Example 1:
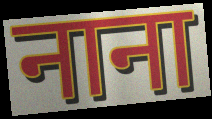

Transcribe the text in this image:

नाना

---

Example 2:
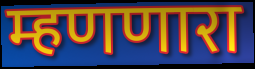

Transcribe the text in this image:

म्हणणारा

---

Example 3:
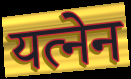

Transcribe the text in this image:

यत्नेन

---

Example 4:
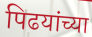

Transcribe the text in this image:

पिढयांच्या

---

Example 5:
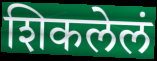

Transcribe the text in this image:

शिकलेलं